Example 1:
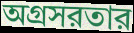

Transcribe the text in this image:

অগ্রসরতার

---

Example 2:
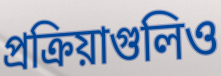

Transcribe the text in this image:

প্রক্রিয়াগুলিও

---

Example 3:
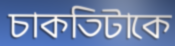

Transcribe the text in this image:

চাকতিটাকে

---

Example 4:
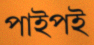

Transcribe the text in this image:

পাইপই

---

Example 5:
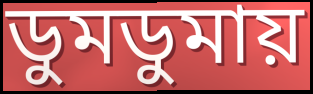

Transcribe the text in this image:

ডুমডুমায়